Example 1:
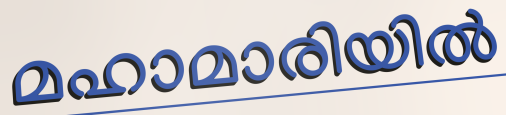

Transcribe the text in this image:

മഹാമാരിയിൽ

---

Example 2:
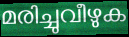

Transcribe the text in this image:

മരിച്ചുവീഴുക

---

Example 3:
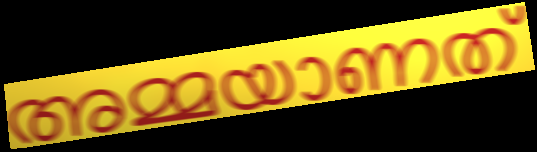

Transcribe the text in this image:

അമ്മയാണത്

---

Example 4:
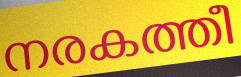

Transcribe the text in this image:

നരകത്തീ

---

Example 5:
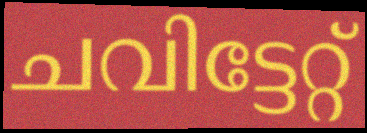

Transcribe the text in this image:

ചവിട്ടേറ്റ്